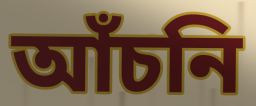
আঁচনি